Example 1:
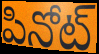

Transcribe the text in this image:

పినోట్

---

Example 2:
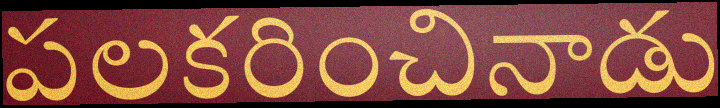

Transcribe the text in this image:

పలకరించినాడు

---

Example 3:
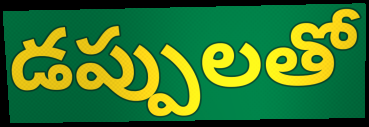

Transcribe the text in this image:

డప్పులతో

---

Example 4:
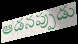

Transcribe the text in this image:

ఆడనప్పుడు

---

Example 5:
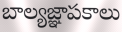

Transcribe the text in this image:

బాల్యజ్ఞాపకాలు